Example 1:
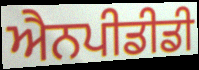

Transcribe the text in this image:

ਐਨਪੀਡੀਡੀ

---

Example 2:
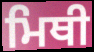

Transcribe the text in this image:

ਮਿਥੀ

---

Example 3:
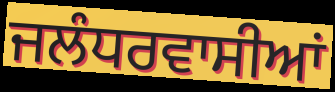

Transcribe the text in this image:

ਜਲੰਧਰਵਾਸੀਆਂ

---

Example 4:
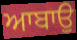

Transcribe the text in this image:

ਆਬਾਉ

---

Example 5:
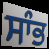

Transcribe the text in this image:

ਸਾੰਭ